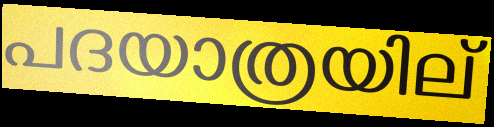
പദയാത്രയില്